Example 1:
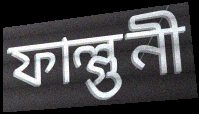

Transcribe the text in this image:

ফাল্গুনী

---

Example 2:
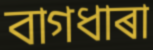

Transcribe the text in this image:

বাগধাৰা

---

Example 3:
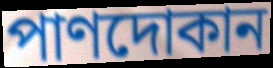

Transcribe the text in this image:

পাণদোকান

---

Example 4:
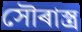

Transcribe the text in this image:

সৌৰাস্ত্ৰ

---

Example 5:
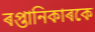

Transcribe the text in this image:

ৰপ্তানিকাৰকে